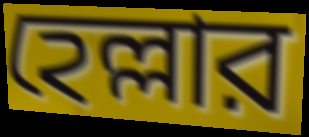
হেল্লার